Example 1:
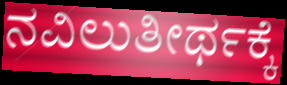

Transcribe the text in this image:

ನವಿಲುತೀರ್ಥಕ್ಕೆ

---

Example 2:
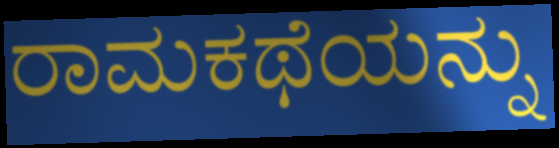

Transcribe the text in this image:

ರಾಮಕಥೆಯನ್ನು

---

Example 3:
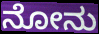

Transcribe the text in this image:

ನೋನು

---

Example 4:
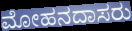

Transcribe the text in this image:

ಮೋಹನದಾಸರು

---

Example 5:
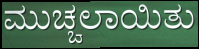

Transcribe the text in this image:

ಮುಚ್ಚಲಾಯಿತು